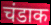
चंडाक